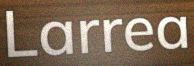
Larrea